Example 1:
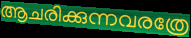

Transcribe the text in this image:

ആചരിക്കുന്നവരത്രേ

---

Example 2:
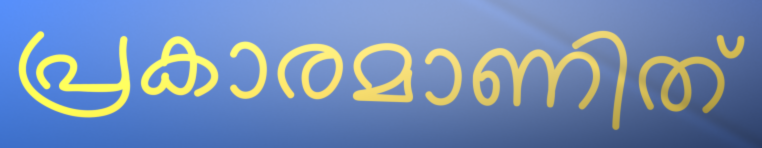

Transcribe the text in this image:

പ്രകാരമാണിത്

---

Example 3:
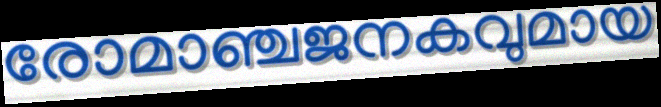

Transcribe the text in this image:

രോമാഞ്ചജനകവുമായ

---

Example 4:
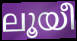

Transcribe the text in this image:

ലൂയീ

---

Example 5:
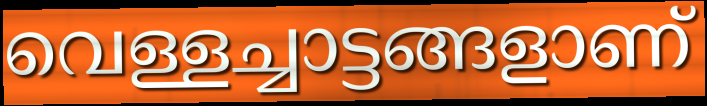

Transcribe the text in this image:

വെള്ളച്ചാട്ടങ്ങളാണ്